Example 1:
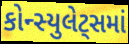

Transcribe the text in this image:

કોન્સ્યુલેટ્સમાં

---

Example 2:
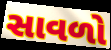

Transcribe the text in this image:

સાવળો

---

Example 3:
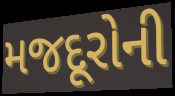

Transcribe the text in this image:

મજદૂરોની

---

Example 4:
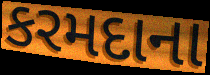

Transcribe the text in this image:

કરમદાના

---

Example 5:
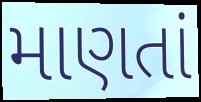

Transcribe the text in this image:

માણતાં